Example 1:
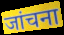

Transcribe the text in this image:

जांचना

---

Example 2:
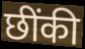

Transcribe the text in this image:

छींकी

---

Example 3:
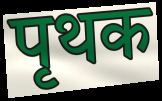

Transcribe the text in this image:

पृथक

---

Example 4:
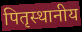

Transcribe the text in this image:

पितृस्थानीय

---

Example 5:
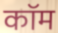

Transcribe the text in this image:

कॉम